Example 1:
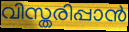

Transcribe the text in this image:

വിസ്തരിപ്പാൻ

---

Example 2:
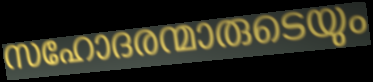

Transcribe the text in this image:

സഹോദരന്മാരുടെയും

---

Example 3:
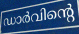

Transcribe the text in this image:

ഡാർവിന്റെ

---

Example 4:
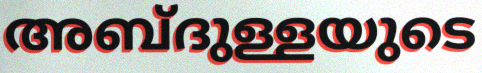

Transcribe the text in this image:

അബ്ദുള്ളയുടെ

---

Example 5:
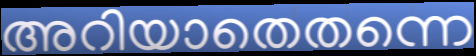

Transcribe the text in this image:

അറിയാതെതന്നെ